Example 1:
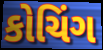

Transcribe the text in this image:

કોચિંગ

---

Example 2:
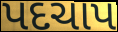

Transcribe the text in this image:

પદચાપ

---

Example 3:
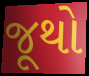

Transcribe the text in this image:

જૂથો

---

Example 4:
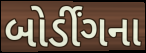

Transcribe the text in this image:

બોર્ડીંગના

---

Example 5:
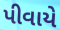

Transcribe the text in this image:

પીવાયે